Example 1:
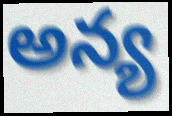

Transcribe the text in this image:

అన్య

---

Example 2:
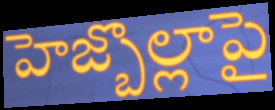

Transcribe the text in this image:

హెజ్బొల్లాపై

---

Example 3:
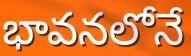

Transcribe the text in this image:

భావనలోనే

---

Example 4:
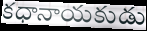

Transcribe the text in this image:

కధానాయకుడు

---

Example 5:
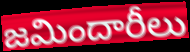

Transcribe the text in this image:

జమిందారీలు